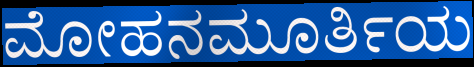
ಮೋಹನಮೂರ್ತಿಯ